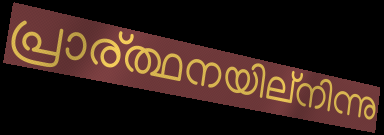
പ്രാര്ത്ഥനയില്നിന്നു